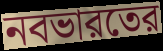
নবভারতের